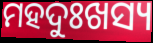
ମହଦୁଃଖସ୍ୟ